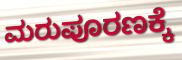
ಮರುಪೂರಣಕ್ಕೆ